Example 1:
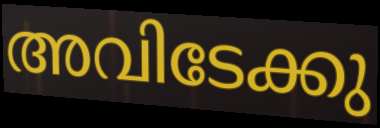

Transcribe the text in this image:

അവിടേക്കു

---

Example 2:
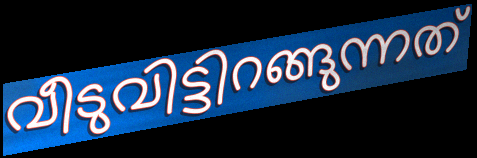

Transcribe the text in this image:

വീടുവിട്ടിറങ്ങുന്നത്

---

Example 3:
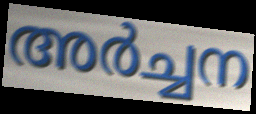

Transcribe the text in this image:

അർച്ചന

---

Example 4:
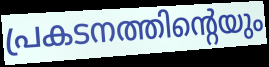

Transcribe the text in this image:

പ്രകടനത്തിന്റെയും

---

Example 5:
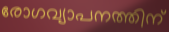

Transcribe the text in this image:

രോഗവ്യാപനത്തിന്